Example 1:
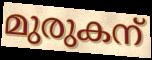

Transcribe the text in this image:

മുരുകന്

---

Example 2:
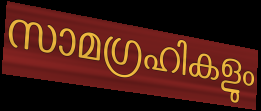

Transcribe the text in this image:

സാമഗ്രഹികളും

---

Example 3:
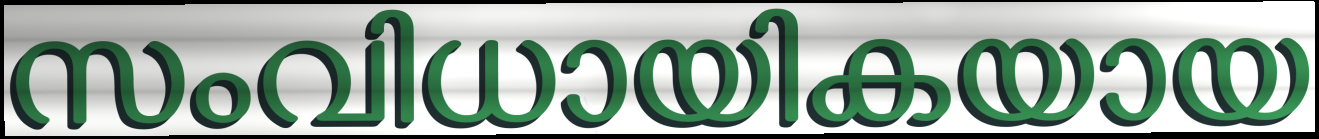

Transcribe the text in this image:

സംവിധായികയായ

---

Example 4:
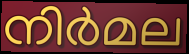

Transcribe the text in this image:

നിർമല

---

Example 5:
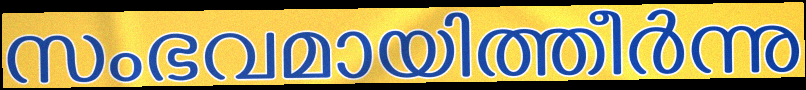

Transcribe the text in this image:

സംഭവമായിത്തീർന്നു